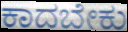
ಕಾದಬೇಕು